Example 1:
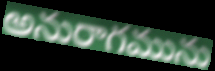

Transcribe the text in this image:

అనురాగమును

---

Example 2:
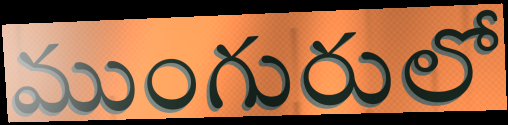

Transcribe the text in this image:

ముంగురులో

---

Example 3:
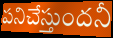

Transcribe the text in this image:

పనిచేస్తుందనీ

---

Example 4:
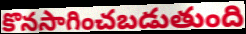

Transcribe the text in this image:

కొనసాగించబడుతుంది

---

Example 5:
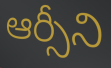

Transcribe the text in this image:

ఆర్సీని